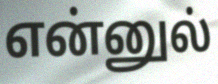
என்னுல்